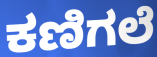
ಕಣಿಗಲೆ